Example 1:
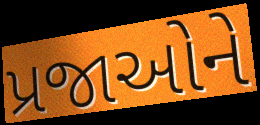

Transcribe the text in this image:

પ્રજાઓને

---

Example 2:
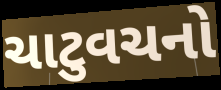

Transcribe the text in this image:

ચાટુવચનો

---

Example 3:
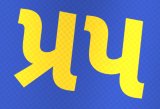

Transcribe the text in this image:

પ્રપ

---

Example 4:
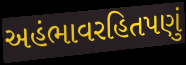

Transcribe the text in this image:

અહંભાવરહિતપણું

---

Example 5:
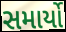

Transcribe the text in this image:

સમાર્યો